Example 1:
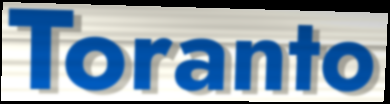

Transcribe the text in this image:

Toranto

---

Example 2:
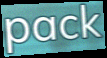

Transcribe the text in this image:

pack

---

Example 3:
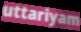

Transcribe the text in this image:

uttariyam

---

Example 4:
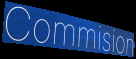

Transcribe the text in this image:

Commision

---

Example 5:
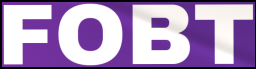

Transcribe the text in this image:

FOBT